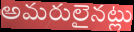
అమరులైనట్లు